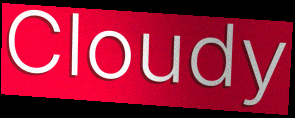
Cloudy